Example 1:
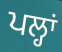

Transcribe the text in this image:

ਪਲ੍ਹਾਂ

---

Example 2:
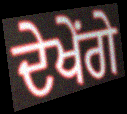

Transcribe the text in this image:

ਦੇਖੇਂਗੇ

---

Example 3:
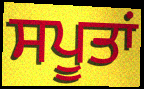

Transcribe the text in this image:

ਸਪੂਤਾਂ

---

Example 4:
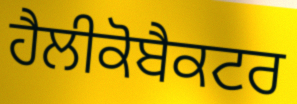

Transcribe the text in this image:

ਹੈਲੀਕੋਬੈਕਟਰ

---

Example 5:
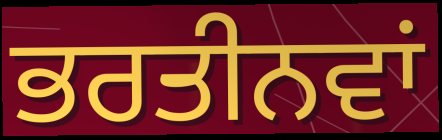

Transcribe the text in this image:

ਭਰਤੀਨਵਾਂ